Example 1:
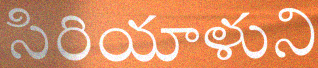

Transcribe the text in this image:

సిరియాళుని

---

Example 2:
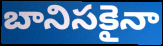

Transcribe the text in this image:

బానిసకైనా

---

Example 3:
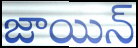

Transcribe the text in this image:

జాయిన్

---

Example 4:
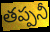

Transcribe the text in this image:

తప్పనీ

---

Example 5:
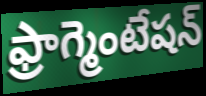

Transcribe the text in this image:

ఫ్రాగ్మెంటేషన్